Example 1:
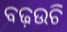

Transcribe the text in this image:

ବଢ଼ଉଚି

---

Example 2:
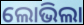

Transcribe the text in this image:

ଲୋଭିଲା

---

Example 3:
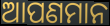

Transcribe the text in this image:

ଆପଣମାନ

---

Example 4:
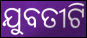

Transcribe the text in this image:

ଯୁବତୀଟି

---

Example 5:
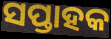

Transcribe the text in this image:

ସପ୍ତାହକ